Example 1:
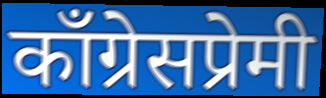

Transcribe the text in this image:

काँग्रेसप्रेमी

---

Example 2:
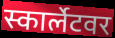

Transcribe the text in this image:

स्कार्लेटवर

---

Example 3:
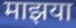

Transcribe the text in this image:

माझया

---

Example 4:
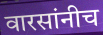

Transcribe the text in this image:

वारसांनीच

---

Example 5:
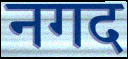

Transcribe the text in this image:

नगद